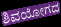
ಶಿವಯೋಗದ